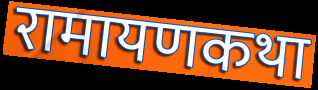
रामायणकथा